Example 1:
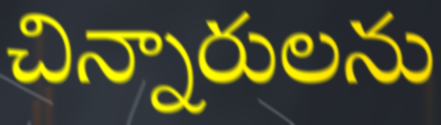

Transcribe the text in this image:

చిన్నారులను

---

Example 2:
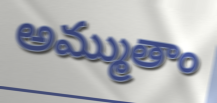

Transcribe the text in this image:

అమ్ముతాం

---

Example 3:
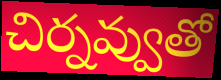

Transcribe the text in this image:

చిర్నవ్వుతో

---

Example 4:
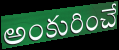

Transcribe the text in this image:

అంకురించే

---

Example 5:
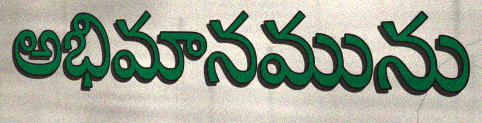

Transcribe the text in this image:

అభిమానమును